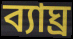
ব্যাঘ্ৰ